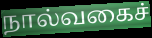
நால்வகைச்